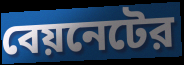
বেয়নেটের